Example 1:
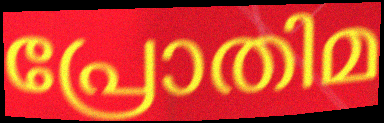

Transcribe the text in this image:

പ്രോതിമ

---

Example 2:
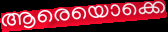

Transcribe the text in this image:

ആരെയൊക്കെ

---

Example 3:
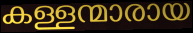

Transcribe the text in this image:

കള്ളന്മാരായ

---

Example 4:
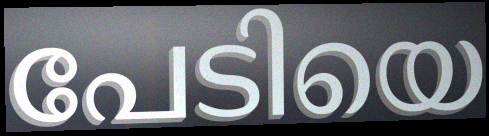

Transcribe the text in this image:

പേടിയെ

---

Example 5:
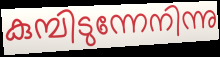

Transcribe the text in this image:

കുമ്പിടുന്നേനിന്നു